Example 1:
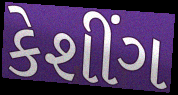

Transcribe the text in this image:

કેશીંગ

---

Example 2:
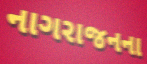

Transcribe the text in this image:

નાગરાજનના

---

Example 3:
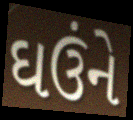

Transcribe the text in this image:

ઘઉંને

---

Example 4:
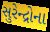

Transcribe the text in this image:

સુરેન્દ્રોના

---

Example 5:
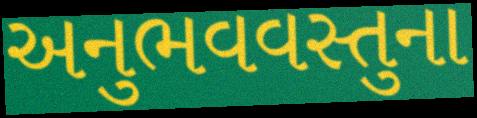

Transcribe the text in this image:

અનુભવવસ્તુના